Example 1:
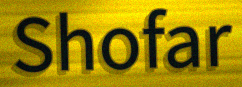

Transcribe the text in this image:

Shofar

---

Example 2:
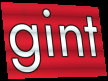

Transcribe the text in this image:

gint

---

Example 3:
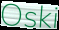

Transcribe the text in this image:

Oski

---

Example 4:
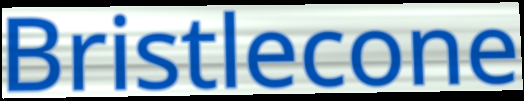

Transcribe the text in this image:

Bristlecone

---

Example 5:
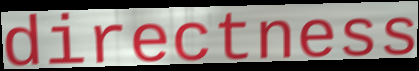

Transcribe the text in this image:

directness